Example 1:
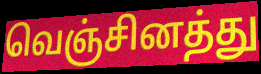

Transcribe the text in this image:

வெஞ்சினத்து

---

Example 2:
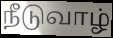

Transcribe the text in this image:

நீடுவாழ்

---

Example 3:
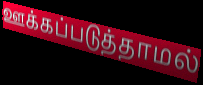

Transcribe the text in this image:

ஊக்கப்படுத்தாமல்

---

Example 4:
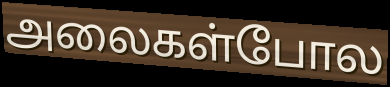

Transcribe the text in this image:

அலைகள்போல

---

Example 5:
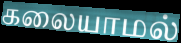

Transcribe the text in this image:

கலையாமல்